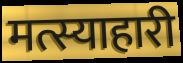
मत्स्याहारी